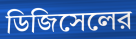
ডিজিসেলের